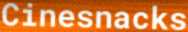
Cinesnacks